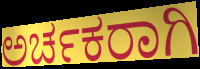
ಅರ್ಚಕರಾಗಿ